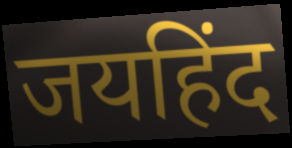
जयहिंद